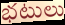
భటులు